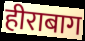
हीराबाग